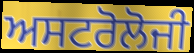
ਅਸਟਰੋਲੋਜੀ